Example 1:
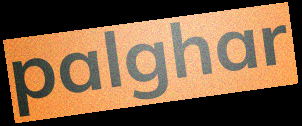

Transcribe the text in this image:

palghar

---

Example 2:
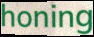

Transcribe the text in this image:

honing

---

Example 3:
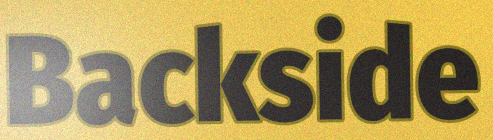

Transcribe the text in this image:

Backside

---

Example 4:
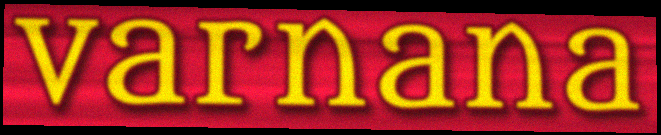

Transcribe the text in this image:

varnana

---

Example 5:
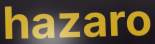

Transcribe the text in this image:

hazaro